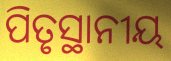
ପିତୃସ୍ଥାନୀୟ